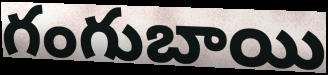
గంగుబాయి